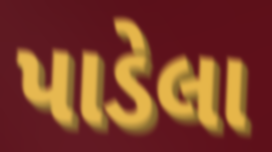
પાડેલા